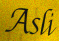
Asli